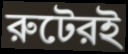
রুটেরই